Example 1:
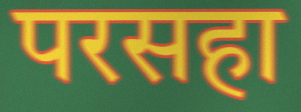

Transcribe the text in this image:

परसहा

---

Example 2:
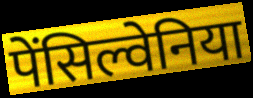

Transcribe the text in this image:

पेंसिल्वेनिया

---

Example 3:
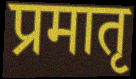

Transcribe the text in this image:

प्रमातृ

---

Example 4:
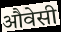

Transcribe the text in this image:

औवेसी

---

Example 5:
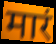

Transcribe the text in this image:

मारं